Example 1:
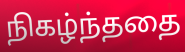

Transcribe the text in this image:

நிகழ்ந்ததை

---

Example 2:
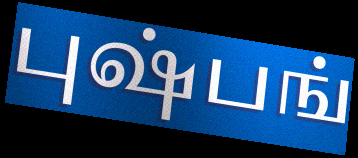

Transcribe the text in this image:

புஷ்பங்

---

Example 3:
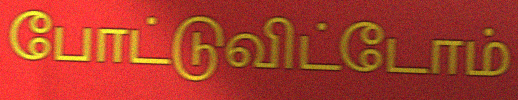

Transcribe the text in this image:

போட்டுவிட்டோம்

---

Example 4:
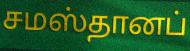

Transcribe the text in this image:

சமஸ்தானப்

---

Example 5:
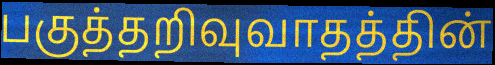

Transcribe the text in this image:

பகுத்தறிவுவாதத்தின்